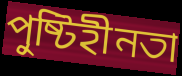
পুষ্টিহীনতা